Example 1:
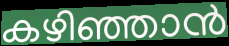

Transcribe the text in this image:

കഴിഞ്ഞാൻ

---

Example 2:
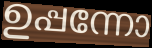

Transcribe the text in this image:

ഉപ്പന്നോ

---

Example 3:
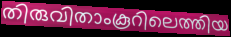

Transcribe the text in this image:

തിരുവിതാംകൂറിലെത്തിയ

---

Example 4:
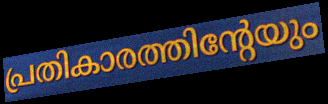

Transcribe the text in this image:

പ്രതികാരത്തിന്റേയും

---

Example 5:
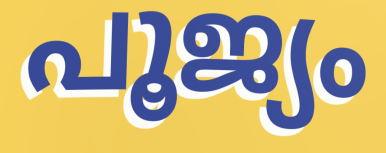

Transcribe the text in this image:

പൂജ്യം